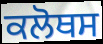
ਕਲੋਥਸ